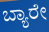
ಬ್ಯಾರೇ